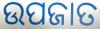
ଉପଜାତ